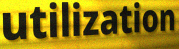
utilization